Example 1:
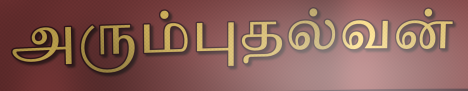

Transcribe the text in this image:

அரும்புதல்வன்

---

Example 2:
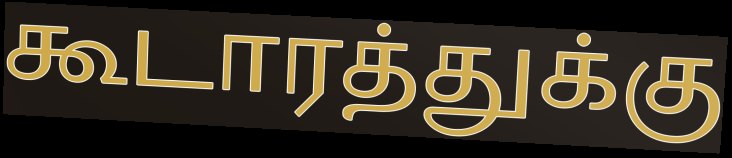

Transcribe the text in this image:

கூடாரத்துக்கு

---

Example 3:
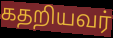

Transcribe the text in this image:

கதறியவர்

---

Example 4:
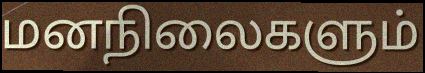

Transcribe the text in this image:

மனநிலைகளும்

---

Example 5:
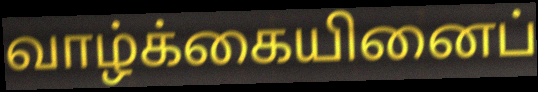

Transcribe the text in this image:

வாழ்க்கையினைப்